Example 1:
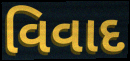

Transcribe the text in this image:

વિવાદ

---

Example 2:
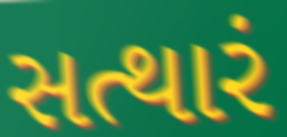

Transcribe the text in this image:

સત્થારં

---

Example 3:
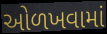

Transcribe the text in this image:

ઓળખવામાં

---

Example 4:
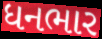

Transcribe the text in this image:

ધનભાર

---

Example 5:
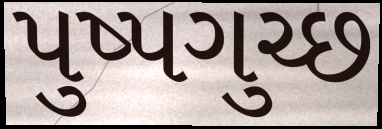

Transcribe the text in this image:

પુષ્પગુચ્છ